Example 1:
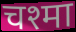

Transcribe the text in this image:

चश्मा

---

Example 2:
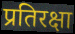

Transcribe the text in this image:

प्रतिरक्षा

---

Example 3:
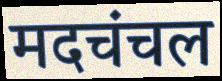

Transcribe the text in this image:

मदचंचल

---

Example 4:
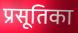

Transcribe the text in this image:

प्रसूतिका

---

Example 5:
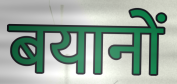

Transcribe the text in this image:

बयानों